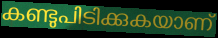
കണ്ടുപിടിക്കുകയാണ്